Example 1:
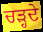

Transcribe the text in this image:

ਚਡ਼੍ਹਦੇ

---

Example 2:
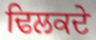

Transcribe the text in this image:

ਢਿਲਕਦੇ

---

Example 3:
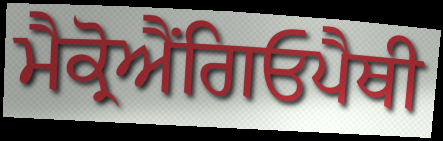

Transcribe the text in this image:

ਮੈਕ੍ਰੋਐਂਗਿਓਪੈਥੀ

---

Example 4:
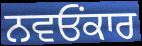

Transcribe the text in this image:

ਨਵਓਂਕਾਰ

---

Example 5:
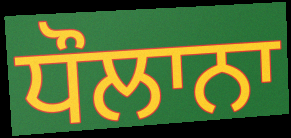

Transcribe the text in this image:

ਧੌਲਾਨਾ